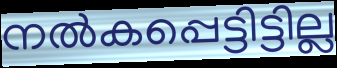
നൽകപ്പെട്ടിട്ടില്ല